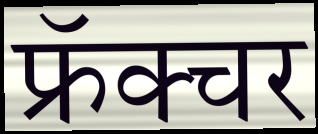
फ्रॅक्चर